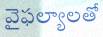
వైఫల్యాలతో